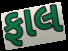
ફાલ